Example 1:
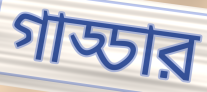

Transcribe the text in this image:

গাড্ডার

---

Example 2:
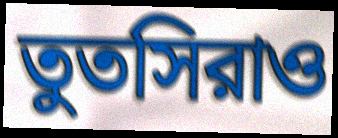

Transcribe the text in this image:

তুতসিরাও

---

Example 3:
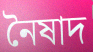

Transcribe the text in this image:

নৈষাদ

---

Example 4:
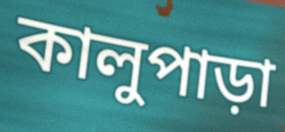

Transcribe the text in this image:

কালুপাড়া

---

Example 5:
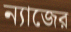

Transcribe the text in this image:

ন্যাজের